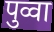
पुव्वा